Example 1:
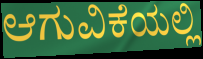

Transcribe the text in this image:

ಆಗುವಿಕೆಯಲ್ಲಿ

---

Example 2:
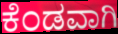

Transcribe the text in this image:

ಕೆಂಡವಾಗಿ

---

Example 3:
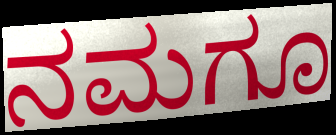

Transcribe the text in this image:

ನಮಗೂ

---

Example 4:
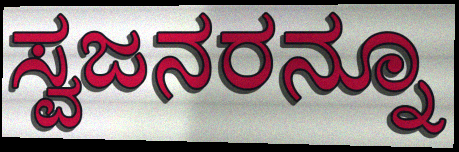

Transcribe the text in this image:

ಸ್ವಜನರನ್ನೂ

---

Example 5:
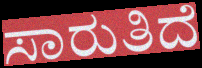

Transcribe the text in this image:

ಸಾರುತಿದೆ